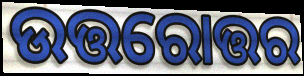
ଉତ୍ତରୋତ୍ତର